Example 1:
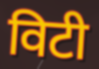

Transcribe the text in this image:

विटी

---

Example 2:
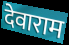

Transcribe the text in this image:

देवाराम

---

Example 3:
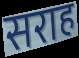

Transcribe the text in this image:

सराह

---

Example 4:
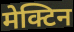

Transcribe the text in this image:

मेक्टिन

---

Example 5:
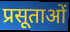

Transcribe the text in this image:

प्रसूताओं